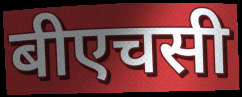
बीएचसी